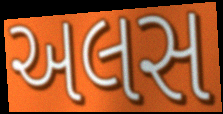
અલસ